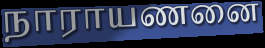
நாராயணனை